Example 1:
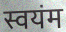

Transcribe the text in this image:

स्वयंम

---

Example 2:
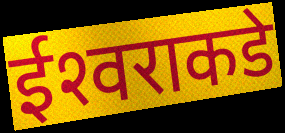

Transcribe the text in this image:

ईश्वराकडे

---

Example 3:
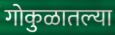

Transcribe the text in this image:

गोकुळातल्या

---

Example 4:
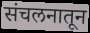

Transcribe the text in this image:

संचलनातून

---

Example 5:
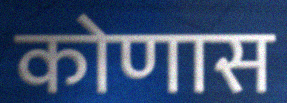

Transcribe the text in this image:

कोणास